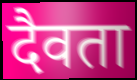
दैवता